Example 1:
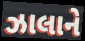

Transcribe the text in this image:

ઝાલાને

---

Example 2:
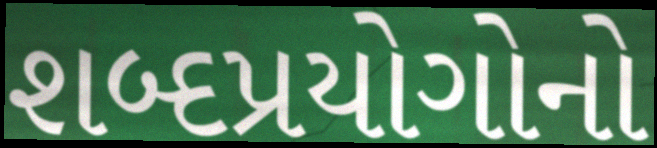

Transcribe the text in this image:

શબ્દપ્રયોગોનો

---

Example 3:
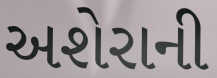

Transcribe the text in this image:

અશેરાની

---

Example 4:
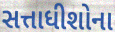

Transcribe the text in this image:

સત્તાધીશોના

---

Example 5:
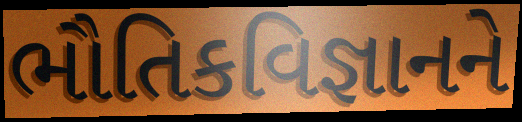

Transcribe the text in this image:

ભૌતિકવિજ્ઞાનને